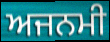
ਅਜਨਮੀ